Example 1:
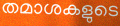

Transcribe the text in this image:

തമാശകളുടെ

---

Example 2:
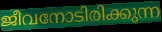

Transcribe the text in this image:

ജീവനോടിരിക്കുന്ന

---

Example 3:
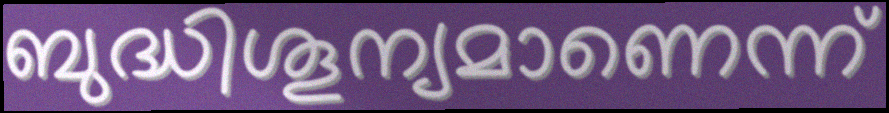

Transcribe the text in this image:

ബുദ്ധിശൂന്യമാണെന്ന്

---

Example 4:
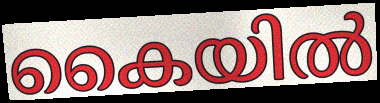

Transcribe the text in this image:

കൈയിൽ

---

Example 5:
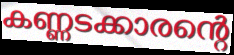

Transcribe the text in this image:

കണ്ണടക്കാരന്റെ